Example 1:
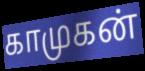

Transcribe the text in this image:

காமுகன்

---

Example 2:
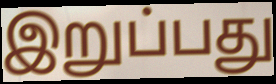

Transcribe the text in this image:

இறுப்பது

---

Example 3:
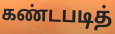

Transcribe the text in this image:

கண்டபடித்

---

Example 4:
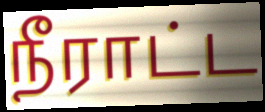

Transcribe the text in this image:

நீராட்ட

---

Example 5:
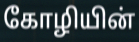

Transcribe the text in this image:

கோழியின்